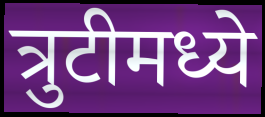
त्रुटीमध्ये